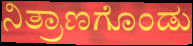
ನಿತ್ರಾಣಗೊಂಡು